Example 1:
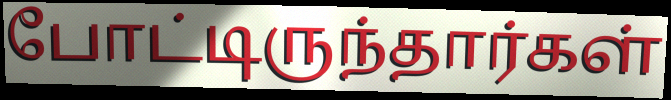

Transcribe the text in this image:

போட்டிருந்தார்கள்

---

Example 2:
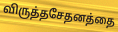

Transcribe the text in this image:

விருத்தசேதனத்தை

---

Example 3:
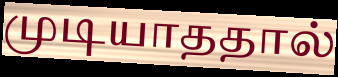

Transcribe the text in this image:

முடியாததால்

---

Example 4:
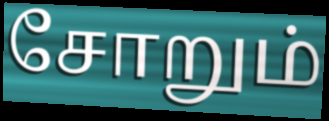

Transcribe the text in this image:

சோறும்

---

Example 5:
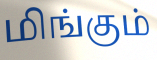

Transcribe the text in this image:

மிங்கும்